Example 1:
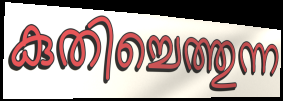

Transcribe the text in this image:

കുതിച്ചെത്തുന്ന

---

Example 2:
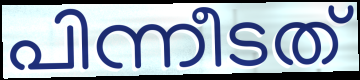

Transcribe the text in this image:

പിന്നീടത്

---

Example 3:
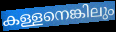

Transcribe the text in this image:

കള്ളനെങ്കിലും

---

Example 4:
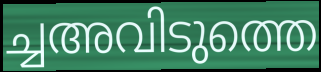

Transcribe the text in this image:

ച്ചഅവിടുത്തെ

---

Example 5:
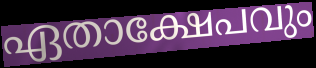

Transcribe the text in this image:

ഏതാക്ഷേപവും